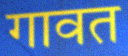
गावत